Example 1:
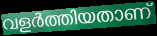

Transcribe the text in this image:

വളർത്തിയതാണ്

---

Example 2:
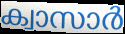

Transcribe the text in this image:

ക്വാസാർ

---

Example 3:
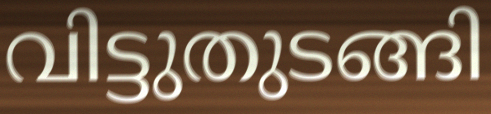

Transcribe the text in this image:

വിട്ടുതുടങ്ങി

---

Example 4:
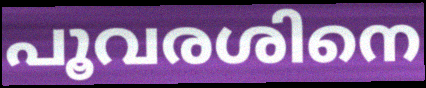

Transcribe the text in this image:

പൂവരശിനെ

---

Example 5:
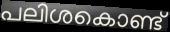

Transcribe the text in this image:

പലിശകൊണ്ട്